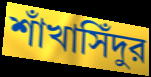
শাঁখাসিঁদুর